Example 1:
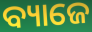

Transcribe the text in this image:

ବ୍ୟାଜେ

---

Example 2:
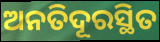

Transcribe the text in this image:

ଅନତିଦୂରସ୍ଥିତ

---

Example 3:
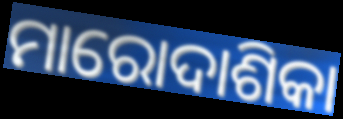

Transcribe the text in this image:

ମାରୋଦାଶିକା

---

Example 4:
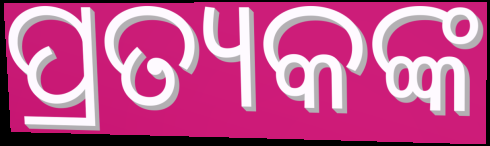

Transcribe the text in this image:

ପ୍ରତ୍ୟକଙ୍କ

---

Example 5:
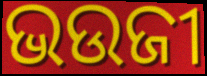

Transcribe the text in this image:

ଭଉଜୀ